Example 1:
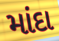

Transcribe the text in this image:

માંદા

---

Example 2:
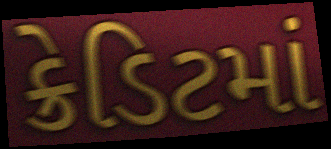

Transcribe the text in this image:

ક્રેડિટમાં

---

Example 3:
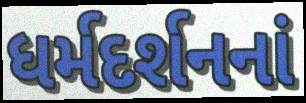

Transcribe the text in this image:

ધર્મદર્શનનાં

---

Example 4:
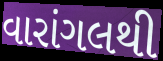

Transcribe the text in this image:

વારાંગલથી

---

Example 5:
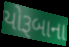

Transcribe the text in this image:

યોરૂબાના